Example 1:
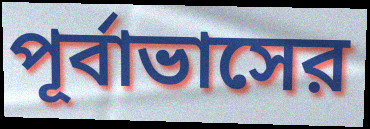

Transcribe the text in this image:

পূর্বাভাসের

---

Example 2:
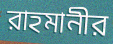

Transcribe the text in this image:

রাহমানীর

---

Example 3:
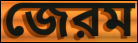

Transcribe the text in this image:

জেরম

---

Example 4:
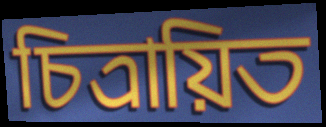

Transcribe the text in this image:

চিত্রায়িত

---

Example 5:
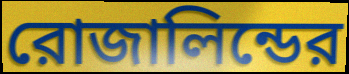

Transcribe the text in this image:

রোজালিন্ডের